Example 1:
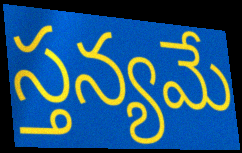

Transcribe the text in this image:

స్తన్యమే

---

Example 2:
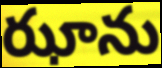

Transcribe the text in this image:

ఝాను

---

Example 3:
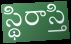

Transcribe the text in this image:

స్థిరాస్తి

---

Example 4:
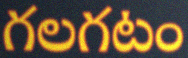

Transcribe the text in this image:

గలగటం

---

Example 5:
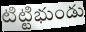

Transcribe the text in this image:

టిట్టిభుండు